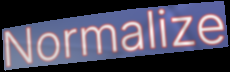
Normalize